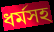
ধর্মসহ